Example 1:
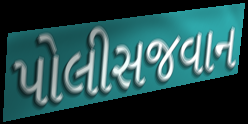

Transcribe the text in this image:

પોલીસજવાન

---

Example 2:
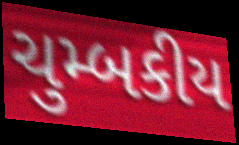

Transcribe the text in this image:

ચુમ્બકીય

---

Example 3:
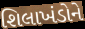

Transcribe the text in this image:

શિલાખંડોને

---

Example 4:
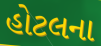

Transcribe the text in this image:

હોટલના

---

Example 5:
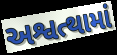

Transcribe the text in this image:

અશ્વત્થામાં